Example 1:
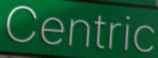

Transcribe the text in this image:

Centric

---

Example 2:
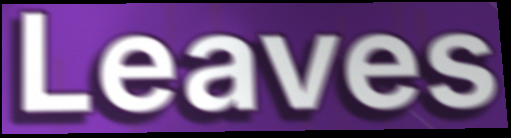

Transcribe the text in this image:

Leaves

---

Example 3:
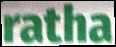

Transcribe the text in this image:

ratha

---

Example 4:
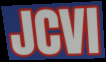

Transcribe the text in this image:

JCVI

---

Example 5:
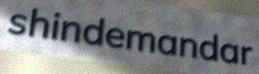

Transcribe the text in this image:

shindemandar